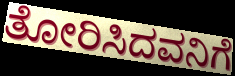
ತೋರಿಸಿದವನಿಗೆ